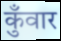
कुँवार